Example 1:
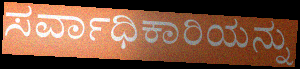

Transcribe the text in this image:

ಸರ್ವಾಧಿಕಾರಿಯನ್ನು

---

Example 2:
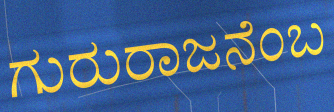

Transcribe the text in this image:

ಗುರುರಾಜನೆಂಬ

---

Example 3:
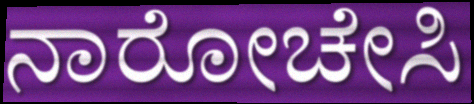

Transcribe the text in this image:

ನಾರೋಚೇಸಿ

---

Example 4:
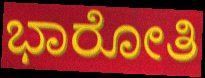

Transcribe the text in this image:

ಭಾರೋತಿ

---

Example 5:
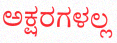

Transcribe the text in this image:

ಅಕ್ಷರಗಳಲ್ಲ